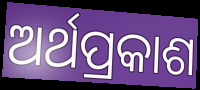
ଅର୍ଥପ୍ରକାଶ